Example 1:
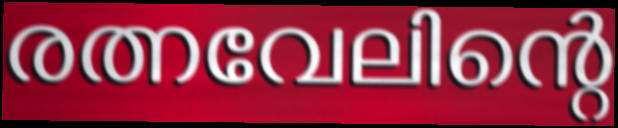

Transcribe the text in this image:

രത്നവേലിന്റെ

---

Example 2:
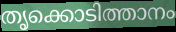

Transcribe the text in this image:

തൃക്കൊടിത്താനം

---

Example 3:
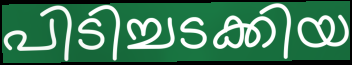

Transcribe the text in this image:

പിടിച്ചടക്കിയ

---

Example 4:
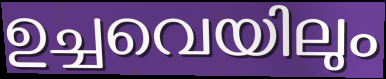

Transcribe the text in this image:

ഉച്ചവെയിലും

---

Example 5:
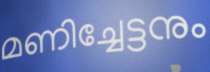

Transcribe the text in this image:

മണിച്ചേട്ടനും